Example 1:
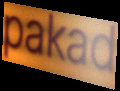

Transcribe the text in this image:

pakad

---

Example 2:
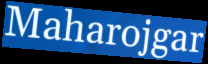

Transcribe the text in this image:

Maharojgar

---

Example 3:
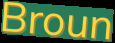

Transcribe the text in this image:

Broun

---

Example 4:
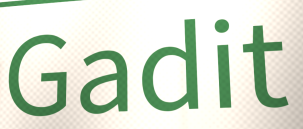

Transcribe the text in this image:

Gadit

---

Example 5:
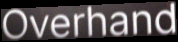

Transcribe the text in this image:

Overhand